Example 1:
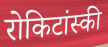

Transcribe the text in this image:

रोकिटांस्की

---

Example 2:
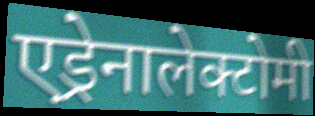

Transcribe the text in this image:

एड्रेनालेक्टोमी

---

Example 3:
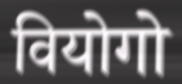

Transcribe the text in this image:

वियोगो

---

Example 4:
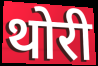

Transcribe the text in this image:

थोरी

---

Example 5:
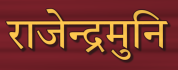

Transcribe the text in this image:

राजेन्द्रमुनि